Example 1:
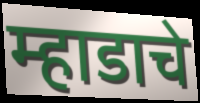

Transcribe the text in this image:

म्हाडाचे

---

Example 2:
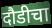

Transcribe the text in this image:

दौडीचा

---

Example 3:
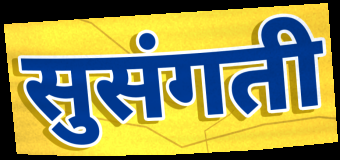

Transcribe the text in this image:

सुसंगती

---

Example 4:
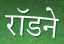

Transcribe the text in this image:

रॉडने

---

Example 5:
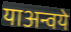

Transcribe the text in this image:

याअन्वये